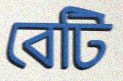
বেটি